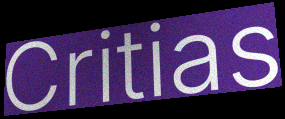
Critias